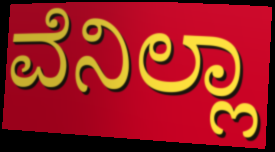
ವೆನಿಲ್ಲಾ